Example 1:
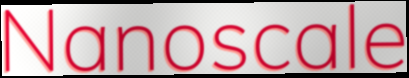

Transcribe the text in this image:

Nanoscale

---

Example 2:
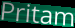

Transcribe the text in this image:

Pritam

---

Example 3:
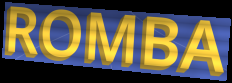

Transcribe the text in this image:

ROMBA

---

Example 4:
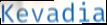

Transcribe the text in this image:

Kevadia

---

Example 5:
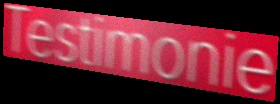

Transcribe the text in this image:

Testimonie